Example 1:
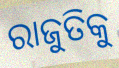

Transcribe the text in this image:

ରାଜୁତିକୁ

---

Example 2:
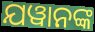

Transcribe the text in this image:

ଯୱାନଙ୍କ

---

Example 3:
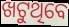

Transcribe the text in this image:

ଖଟୁଥିବେ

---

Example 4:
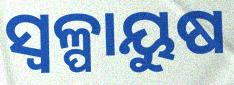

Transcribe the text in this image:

ସ୍ୱଳ୍ପାୟୁଷ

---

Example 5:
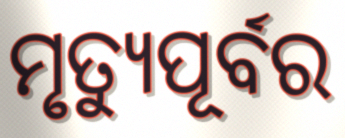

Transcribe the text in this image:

ମୃତ୍ୟୁପୂର୍ବର